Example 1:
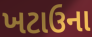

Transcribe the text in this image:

ખટાઉના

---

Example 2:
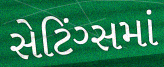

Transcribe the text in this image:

સેટિંગ્સમાં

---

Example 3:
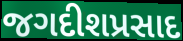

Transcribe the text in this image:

જગદીશપ્રસાદ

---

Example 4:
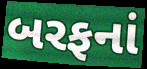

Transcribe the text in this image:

બરફનાં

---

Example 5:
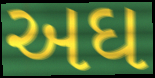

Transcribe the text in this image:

અઘ